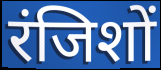
रंजिशों